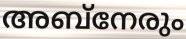
അബ്നേരും